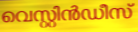
വെസ്റ്റിൻഡീസ്